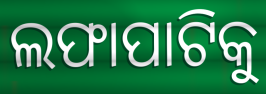
ଲଫାପାଟିକୁ